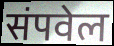
संपवेल